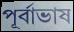
পূর্বাভাষ